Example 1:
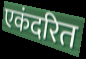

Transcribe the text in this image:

एकंदरित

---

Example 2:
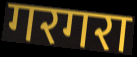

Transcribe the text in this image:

गरगरा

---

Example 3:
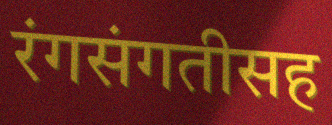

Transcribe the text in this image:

रंगसंगतीसह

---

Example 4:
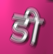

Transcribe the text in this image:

डी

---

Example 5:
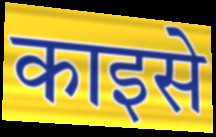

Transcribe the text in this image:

काइसे